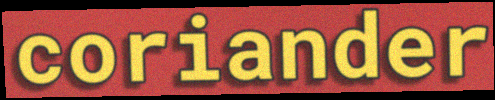
coriander